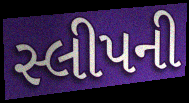
સ્લીપની